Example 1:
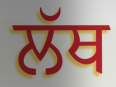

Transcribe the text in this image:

ਲੱਥ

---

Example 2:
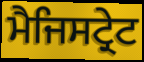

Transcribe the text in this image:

ਮੈਜਿਸਟ੍ਰੇਟ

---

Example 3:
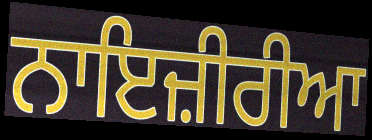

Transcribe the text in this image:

ਨਾਇਜ਼ੀਰੀਆ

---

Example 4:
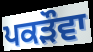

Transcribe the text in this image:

ਪਕੜੌਵਾ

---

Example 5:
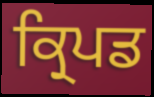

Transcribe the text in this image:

ਕ੍ਰਿਪਡ